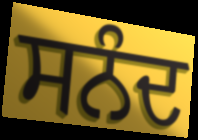
ਸਨੰਦ